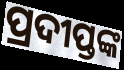
ପ୍ରଦୀପ୍ତଙ୍କ